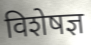
विशेषज्ञ